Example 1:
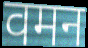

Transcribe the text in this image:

वमन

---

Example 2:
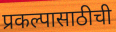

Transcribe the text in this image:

प्रकल्पासाठीची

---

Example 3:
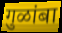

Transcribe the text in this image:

गुळांबा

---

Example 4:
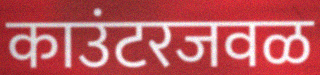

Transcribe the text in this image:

काउंटरजवळ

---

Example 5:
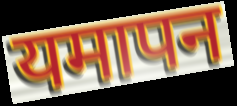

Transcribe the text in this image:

यमापन